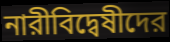
নারীবিদ্বেষীদের